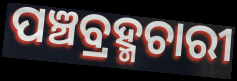
ପଞ୍ଚବ୍ରହ୍ମଚାରୀ